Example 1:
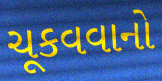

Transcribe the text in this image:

ચૂકવવાનો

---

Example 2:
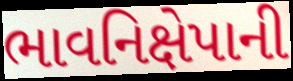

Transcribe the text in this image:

ભાવનિક્ષેપાની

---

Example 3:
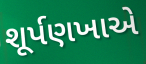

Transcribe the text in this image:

શૂર્પણખાએ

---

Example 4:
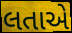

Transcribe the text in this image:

લતાએ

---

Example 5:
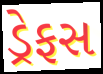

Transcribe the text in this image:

ડ્રેફસ